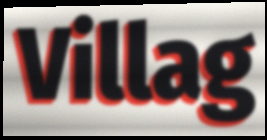
Villag